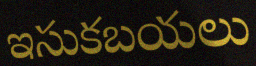
ఇసుకబయలు